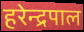
हरेन्द्रपाल